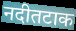
नदीतटाक